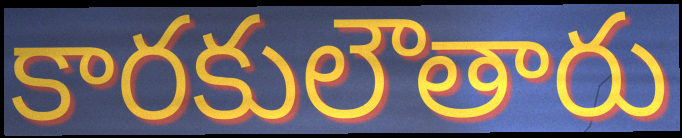
కారకులౌతారు